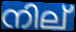
നില്